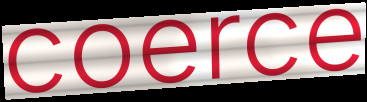
coerce